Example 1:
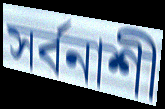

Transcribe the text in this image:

সৰ্বনাশী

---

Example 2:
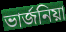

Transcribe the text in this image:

ভাৰ্জনিয়া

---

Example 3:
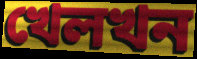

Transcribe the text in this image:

খেলখন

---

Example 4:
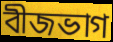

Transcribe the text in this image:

বীজভাগ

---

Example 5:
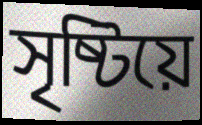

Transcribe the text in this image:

সৃষ্টিয়ে